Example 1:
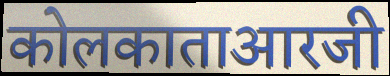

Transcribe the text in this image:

कोलकाताआरजी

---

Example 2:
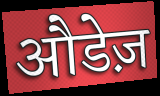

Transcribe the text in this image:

औडेज़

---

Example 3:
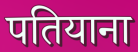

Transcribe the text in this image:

पतियाना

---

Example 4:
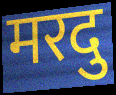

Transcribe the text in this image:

मरदु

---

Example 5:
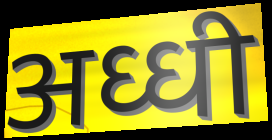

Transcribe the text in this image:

अध्धी